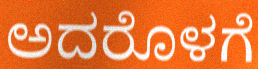
ಅದರೊಳಗೆ